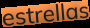
estrellas